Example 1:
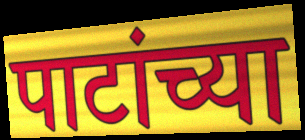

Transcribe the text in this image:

पाटांच्या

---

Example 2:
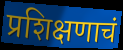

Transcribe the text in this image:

प्रशिक्षणाचं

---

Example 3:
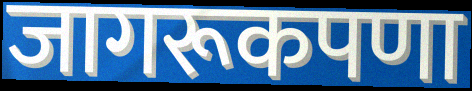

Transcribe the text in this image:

जागरूकपणा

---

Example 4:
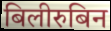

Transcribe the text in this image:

बिलीरुबिन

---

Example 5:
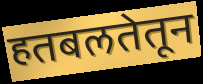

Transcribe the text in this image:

हतबलतेतून